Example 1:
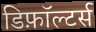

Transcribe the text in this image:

डिफ़ॉल्टर्स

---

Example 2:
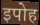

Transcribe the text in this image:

इपोह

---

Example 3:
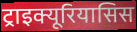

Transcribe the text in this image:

ट्राइक्यूरियासिस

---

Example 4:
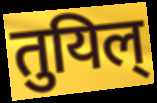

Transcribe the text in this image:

तुयिल्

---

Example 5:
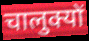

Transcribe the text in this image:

चालुक्यों